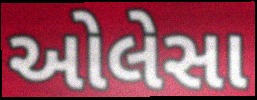
ઓલેસા